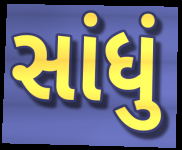
સાંધું